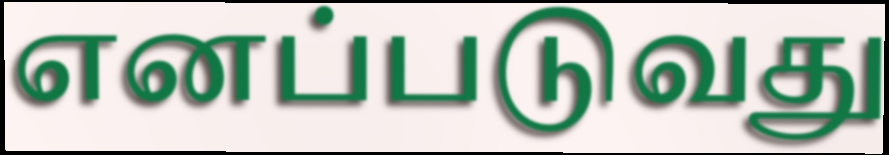
எனப்படுவது